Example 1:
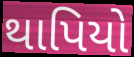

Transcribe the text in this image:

થાપિયો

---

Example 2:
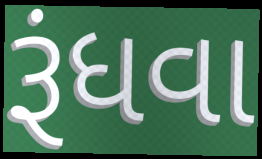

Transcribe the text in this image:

રૂંધવા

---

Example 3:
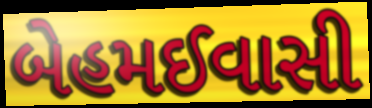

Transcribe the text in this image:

બેહમઈવાસી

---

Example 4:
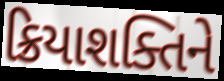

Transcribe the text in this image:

ક્રિયાશક્તિને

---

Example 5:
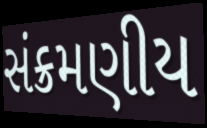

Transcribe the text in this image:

સંક્રમણીય